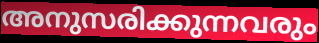
അനുസരിക്കുന്നവരും